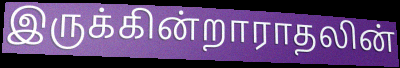
இருக்கின்றாராதலின்